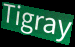
Tigray